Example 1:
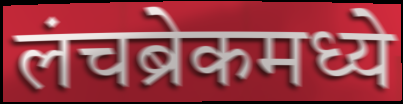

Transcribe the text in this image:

लंचब्रेकमध्ये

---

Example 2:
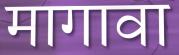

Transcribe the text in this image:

मागावा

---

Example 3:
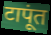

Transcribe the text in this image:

टापूंत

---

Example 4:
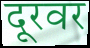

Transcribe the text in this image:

दूरवर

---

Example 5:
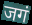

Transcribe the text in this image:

जगं